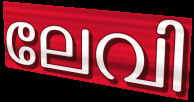
ലേവി